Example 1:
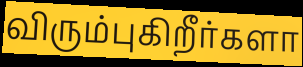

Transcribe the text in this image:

விரும்புகிறீர்களா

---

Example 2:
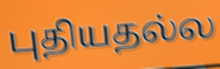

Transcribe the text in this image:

புதியதல்ல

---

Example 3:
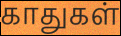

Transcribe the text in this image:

காதுகள்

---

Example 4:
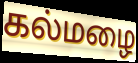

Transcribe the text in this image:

கல்மழை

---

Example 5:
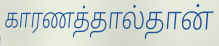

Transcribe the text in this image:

காரணத்தால்தான்